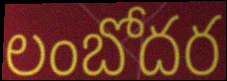
లంబోదర